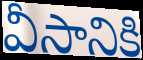
వీసానికి